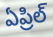
ఏప్రిల్